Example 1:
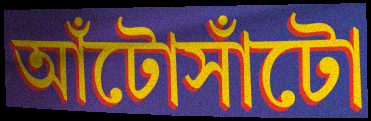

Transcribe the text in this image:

আঁটোসাঁটো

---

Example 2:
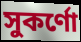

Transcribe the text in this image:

সুকর্ণো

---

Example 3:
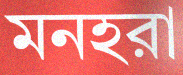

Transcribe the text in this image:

মনহরা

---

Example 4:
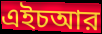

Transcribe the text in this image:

এইচআর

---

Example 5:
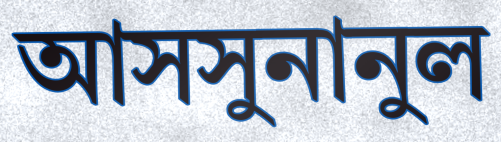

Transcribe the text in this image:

আসসুনানুল